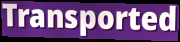
Transported